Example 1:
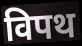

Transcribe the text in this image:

विपथ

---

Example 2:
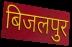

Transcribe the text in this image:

बिजलपुर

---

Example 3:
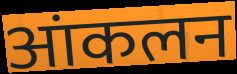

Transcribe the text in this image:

आंकलन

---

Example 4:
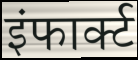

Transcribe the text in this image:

इंफार्क्ट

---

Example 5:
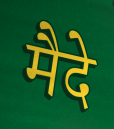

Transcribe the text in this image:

मैदे